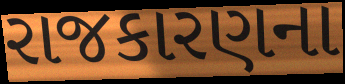
રાજકારણના